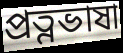
প্রত্নভাষা